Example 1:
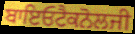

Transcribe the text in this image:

ਬਾਇਓਟੈਕਨੋਲਜੀ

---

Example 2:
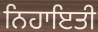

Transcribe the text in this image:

ਨਿਹਾਇਤੀ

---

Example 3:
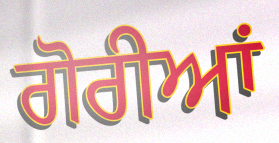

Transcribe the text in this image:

ਗੋਰੀਆਂ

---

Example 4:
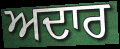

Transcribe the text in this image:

ਅਦਾਰ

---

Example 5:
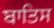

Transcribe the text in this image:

ਬਾਤਿਸ